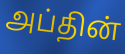
அப்தின்